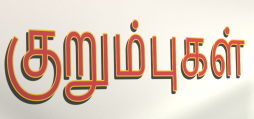
குறும்புகள்